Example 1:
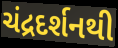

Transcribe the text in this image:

ચંદ્રદર્શનથી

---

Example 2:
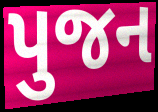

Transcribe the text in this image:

પુજન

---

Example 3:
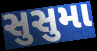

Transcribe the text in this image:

સુસુમા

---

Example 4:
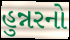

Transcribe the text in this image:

હુન્નરનો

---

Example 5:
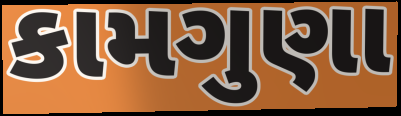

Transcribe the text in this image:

કામગુણા